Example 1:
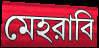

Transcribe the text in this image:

মেহরাবি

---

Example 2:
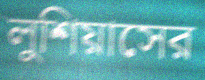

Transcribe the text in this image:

লুশিয়াসের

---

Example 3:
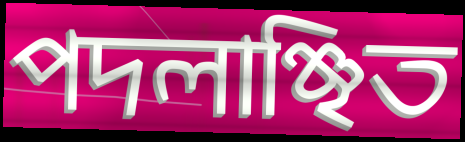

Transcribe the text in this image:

পদলাঞ্ছিত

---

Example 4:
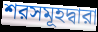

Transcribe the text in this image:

শরসমূহদ্বারা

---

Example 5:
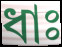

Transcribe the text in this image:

ধাঃ